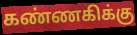
கண்ணகிக்கு